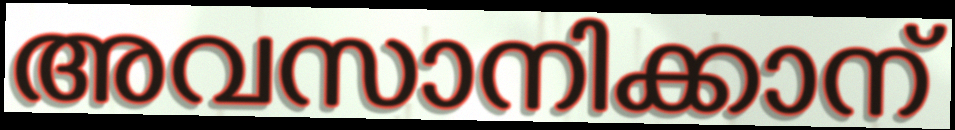
അവസാനിക്കാന്